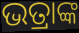
ଭତ୍ରାଙ୍କ